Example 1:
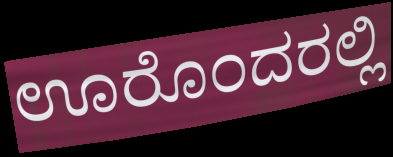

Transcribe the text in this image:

ಊರೊಂದರಲ್ಲಿ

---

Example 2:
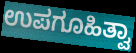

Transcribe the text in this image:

ಉಪಗೂಹಿತ್ವಾ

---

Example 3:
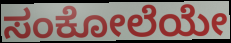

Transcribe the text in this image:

ಸಂಕೋಲೆಯೇ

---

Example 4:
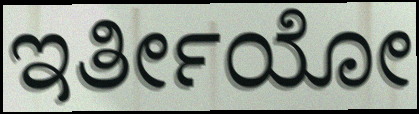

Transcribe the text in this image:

ಇರ್ತೀಯೋ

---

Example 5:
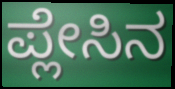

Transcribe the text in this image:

ಪ್ಲೇಸಿನ